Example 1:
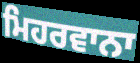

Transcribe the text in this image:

ਮਿਹਰਵਾਨਾ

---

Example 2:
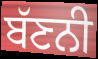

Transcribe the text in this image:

ਬੱਣਨੀ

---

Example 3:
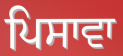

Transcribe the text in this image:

ਪਿਸਾਵਾ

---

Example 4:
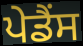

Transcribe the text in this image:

ਪੇਡੈਂਸ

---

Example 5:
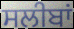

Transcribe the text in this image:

ਸਲੀਬਾਂ